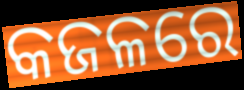
କଜଳରେ